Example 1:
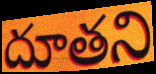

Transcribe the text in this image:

దూతని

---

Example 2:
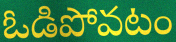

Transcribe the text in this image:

ఓడిపోవటం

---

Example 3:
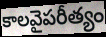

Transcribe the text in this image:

కాలవైపరీత్యం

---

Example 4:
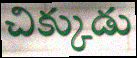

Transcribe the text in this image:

చిక్కుడు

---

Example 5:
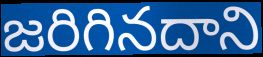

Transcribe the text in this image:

జరిగినదాని